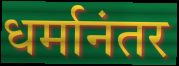
धर्मानंतर